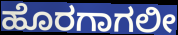
ಹೊರಗಾಗಲೀ